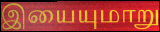
இயையுமாறு